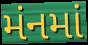
મંનમાં